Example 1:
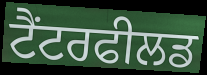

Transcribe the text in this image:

ਟੈਂਟਰਫੀਲਡ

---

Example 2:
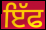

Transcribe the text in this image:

ਇੱਫ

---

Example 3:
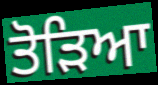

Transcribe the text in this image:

ਤੋਡ਼ਿਆ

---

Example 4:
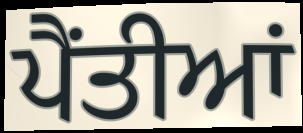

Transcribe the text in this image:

ਪੈਂਤੀਆਂ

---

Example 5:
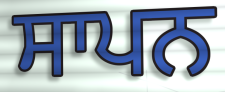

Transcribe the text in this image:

ਸਾਪਨ